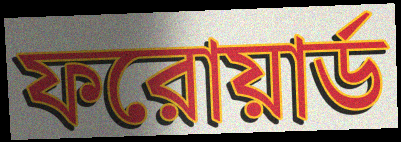
ফরোয়ার্ড